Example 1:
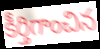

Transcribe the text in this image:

కీర్తిగాంచిన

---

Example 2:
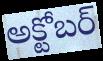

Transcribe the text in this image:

అక్టోబర్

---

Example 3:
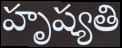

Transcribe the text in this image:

హృష్యతి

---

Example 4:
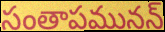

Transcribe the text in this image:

సంతాపమునన్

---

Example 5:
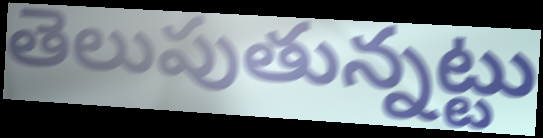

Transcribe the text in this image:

తెలుపుతున్నట్టు